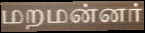
மறமன்னர்